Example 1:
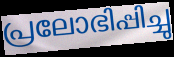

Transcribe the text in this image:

പ്രലോഭിപ്പിച്ചു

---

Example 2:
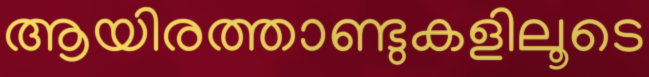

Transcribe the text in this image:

ആയിരത്താണ്ടുകളിലൂടെ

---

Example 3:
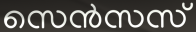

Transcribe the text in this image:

സെൻസസ്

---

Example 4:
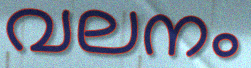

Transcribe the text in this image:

വലനം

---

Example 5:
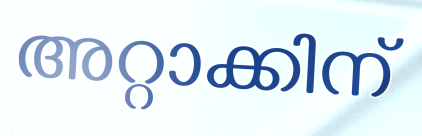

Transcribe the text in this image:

അറ്റാക്കിന്